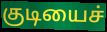
குடியைச்